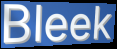
Bleek